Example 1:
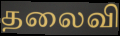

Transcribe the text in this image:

தலைவி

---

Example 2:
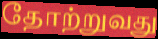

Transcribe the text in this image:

தோற்றுவது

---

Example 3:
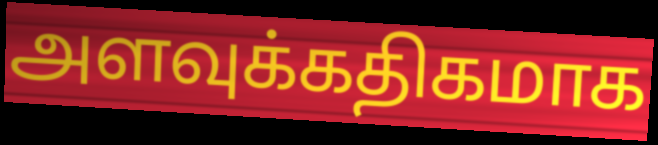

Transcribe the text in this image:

அளவுக்கதிகமாக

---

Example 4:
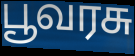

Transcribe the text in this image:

பூவரசு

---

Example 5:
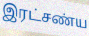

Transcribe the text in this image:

இரட்சண்ய